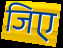
जिए